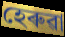
হেৰুৱা